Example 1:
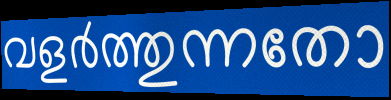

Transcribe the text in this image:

വളർത്തുന്നതോ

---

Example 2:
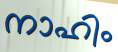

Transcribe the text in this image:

നാഹിം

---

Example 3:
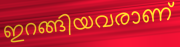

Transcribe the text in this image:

ഇറങ്ങിയവരാണ്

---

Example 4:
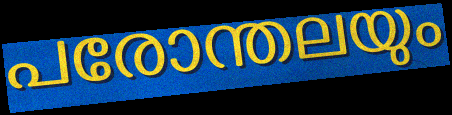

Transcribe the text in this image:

പരോന്തലയും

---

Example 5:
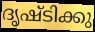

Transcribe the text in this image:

ദൃഷ്ടിക്കു